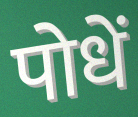
पोधें